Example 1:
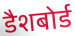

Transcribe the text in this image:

डैशबोर्ड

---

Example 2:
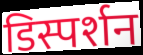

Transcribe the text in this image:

डिस्पर्शन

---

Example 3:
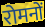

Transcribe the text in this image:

रोमनों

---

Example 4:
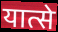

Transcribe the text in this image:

यात्से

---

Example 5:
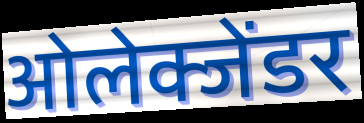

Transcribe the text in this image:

ओलेक्जेंडर